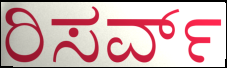
ರಿಸರ್ವ್